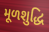
મૂળશુદ્ધિ